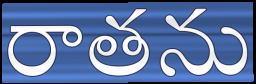
రాతను